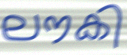
ലൗകി